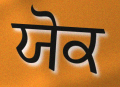
ਯੋਕ